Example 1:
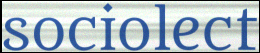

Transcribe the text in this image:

sociolect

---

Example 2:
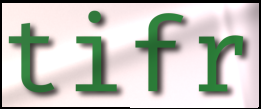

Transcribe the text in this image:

tifr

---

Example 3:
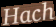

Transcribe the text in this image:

Hach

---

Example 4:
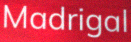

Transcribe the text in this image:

Madrigal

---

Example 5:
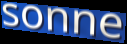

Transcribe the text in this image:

sonne